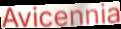
Avicennia